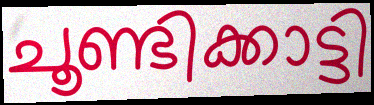
ചൂണ്ടിക്കാട്ടി